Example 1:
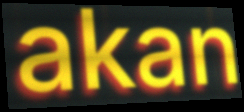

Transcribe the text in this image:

akan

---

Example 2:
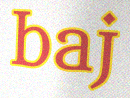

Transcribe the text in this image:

baj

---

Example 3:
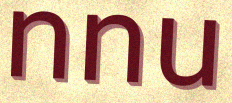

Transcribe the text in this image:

nnu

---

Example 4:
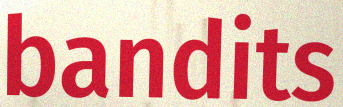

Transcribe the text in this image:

bandits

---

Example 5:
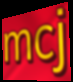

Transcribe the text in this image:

mcj